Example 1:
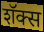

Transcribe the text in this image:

शॅक्स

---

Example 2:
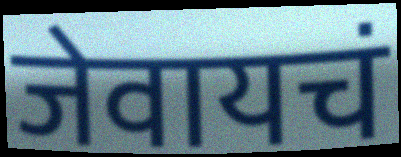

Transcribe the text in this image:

जेवायचं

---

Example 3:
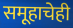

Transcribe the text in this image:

समूहाचेही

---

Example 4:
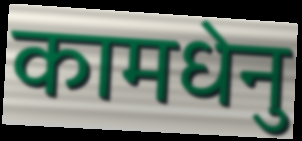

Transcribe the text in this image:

कामधेनु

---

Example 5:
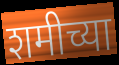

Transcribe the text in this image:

शमीच्या